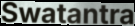
Swatantra